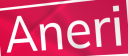
Aneri